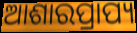
ଆଶାରପ୍ରାପ୍ୟ